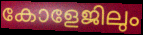
കോളേജിലും